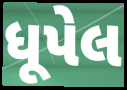
ધૂપેલ